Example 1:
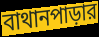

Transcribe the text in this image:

বাথানপাড়ার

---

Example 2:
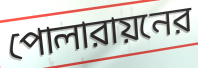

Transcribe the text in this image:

পোলারায়নের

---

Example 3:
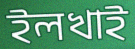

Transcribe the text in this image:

ইলখাই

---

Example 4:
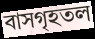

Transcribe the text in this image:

বাসগৃহতল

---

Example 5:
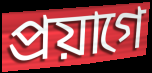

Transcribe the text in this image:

প্রয়াগে